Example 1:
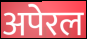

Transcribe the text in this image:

अपेरल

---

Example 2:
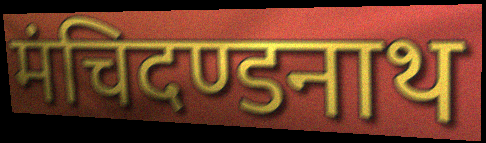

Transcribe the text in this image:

मंचिदण्डनाथ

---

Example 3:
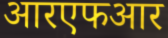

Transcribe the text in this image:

आरएफआर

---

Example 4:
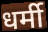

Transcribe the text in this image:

धर्मी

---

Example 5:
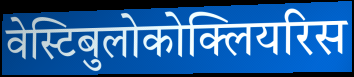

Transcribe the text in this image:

वेस्टिबुलोकोक्लियरिस